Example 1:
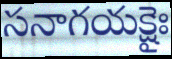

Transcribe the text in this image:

సనాగయక్షైః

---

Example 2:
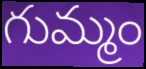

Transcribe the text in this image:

గుమ్మం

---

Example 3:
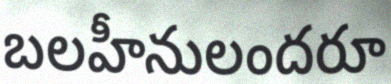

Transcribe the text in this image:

బలహీనులందరూ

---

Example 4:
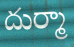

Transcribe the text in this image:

దుర్మా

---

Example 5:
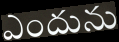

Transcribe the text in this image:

ఎందును